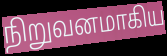
நிறுவனமாகிய